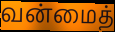
வன்மைத்